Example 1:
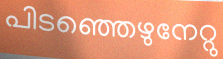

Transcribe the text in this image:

പിടഞ്ഞെഴുനേറ്റു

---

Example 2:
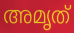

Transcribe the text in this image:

അമൃത്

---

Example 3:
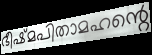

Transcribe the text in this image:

ഭീഷ്മപിതാമഹന്റെ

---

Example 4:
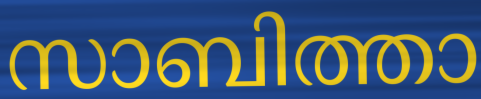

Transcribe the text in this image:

സാബിത്താ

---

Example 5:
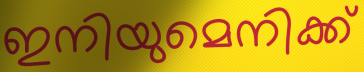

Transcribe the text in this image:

ഇനിയുമെനിക്ക്